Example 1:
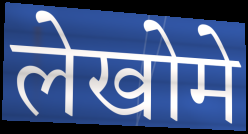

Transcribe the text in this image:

लेखोमे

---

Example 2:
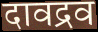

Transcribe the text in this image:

दावद्रव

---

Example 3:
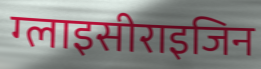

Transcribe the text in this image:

ग्लाइसीराइजिन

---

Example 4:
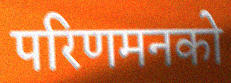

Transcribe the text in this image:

परिणमनको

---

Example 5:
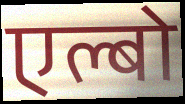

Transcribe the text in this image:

एल्बो